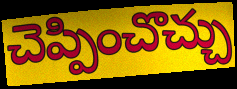
చెప్పించొచ్చు